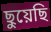
ছুয়েছি